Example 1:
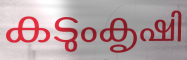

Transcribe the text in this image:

കടുംകൃഷി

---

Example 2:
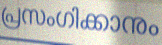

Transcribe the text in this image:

പ്രസംഗിക്കാനും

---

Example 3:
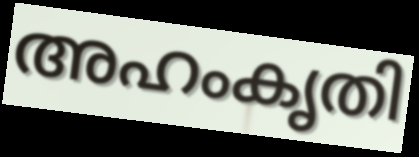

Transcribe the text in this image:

അഹംകൃതി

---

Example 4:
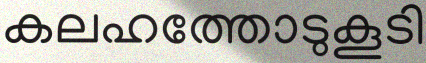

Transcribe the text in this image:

കലഹത്തോടുകൂടി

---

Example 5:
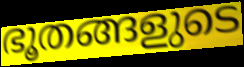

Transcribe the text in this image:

ഭൂതങ്ങളുടെ